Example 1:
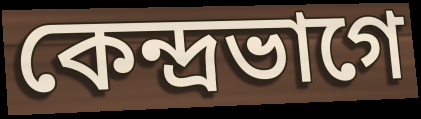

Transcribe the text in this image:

কেন্দ্রভাগে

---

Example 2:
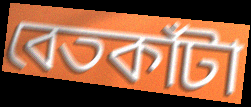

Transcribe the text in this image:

বেতকাঁটা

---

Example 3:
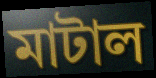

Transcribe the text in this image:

মাটাল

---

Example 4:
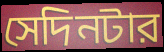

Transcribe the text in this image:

সেদিনটার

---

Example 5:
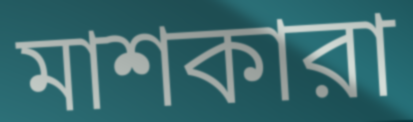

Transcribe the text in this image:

মাশকারা